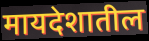
मायदेशातील